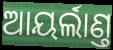
ଆୟର୍ଲାଣ୍ତ